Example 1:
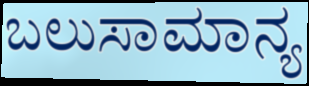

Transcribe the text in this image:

ಬಲುಸಾಮಾನ್ಯ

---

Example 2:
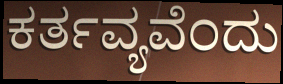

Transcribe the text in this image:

ಕರ್ತವ್ಯವೆಂದು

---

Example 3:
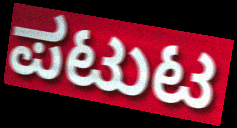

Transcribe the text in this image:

ಪಟುಟ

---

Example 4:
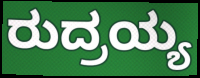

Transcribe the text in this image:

ರುದ್ರಯ್ಯ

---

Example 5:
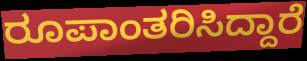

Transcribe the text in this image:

ರೂಪಾಂತರಿಸಿದ್ದಾರೆ